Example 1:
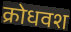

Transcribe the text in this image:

क्रोधवश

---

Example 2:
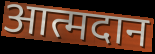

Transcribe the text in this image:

आत्मदान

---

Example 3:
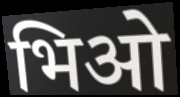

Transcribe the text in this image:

भिओ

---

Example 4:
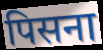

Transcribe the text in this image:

पिसना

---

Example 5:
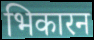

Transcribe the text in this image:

भिकारन